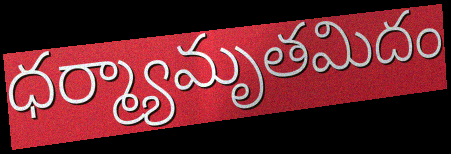
ధర్మ్యామృతమిదం